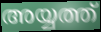
അയ്യത്ത്